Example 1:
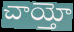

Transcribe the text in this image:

చాయ్తో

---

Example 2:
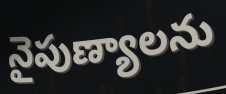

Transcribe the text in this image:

నైపుణ్యాలను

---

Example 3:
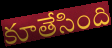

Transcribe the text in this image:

కూతేసింది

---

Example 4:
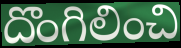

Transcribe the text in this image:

దొంగిలించి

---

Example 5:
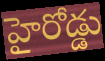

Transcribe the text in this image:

హైరోడ్డు